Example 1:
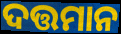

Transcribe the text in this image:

ଦତ୍ତମାନ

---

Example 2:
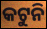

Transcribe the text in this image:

କଟୁନି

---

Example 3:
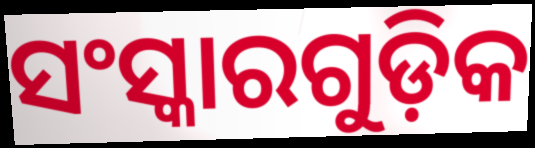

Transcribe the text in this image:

ସଂସ୍କାରଗୁଡ଼ିକ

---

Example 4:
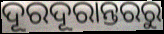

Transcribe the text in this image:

ଦୂରଦୂରାନ୍ତରରୁ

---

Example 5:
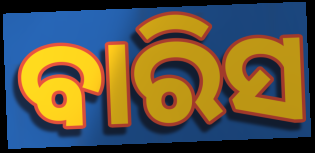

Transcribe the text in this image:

ବାରିସ